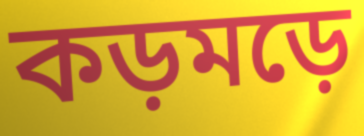
কড়মড়ে